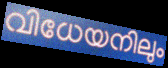
വിധേയനിലും